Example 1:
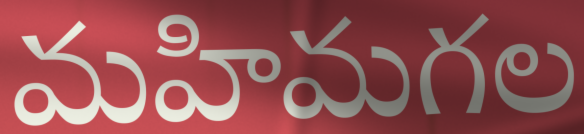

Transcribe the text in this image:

మహిమగల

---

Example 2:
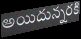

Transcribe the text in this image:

అయిదున్నరకి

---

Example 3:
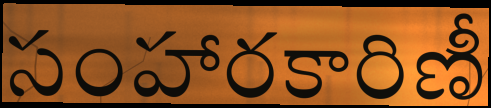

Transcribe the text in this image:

సంహారకారిణీ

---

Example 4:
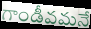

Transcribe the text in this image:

గాండీవమనే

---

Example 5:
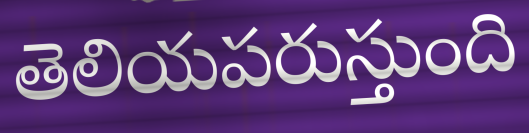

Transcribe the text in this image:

తెలియపరుస్తుంది